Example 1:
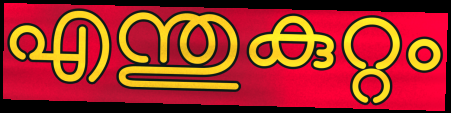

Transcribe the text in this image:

എന്തുകുറ്റം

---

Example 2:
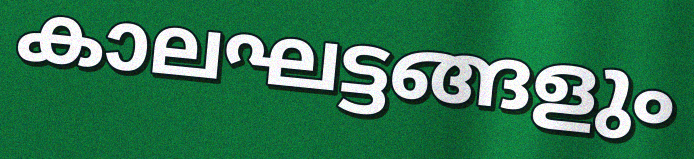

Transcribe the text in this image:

കാലഘട്ടങ്ങളും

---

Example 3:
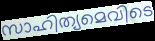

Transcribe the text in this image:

സാഹിത്യമെവിടെ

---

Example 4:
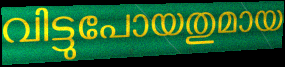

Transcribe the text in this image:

വിട്ടുപോയതുമായ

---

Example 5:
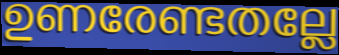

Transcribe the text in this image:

ഉണരേണ്ടതല്ലേ